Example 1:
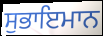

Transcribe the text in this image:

ਸੁਭਾਇਮਾਨ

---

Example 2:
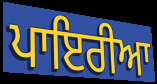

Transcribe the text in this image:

ਪਾਇਰੀਆ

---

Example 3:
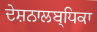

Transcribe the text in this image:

ਦੇਸ਼ਨਾਲਬ੍ਧਿਕਾ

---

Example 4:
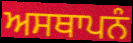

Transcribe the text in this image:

ਅਸਥਾਪਨੰ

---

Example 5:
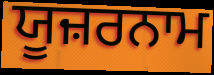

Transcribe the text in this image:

ਯੂਜ਼ਰਨਾਮ